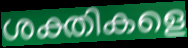
ശക്തികളെ